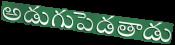
అడుగుపెడతాడు